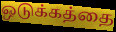
ஒடுக்கத்தை